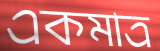
একমাত্র